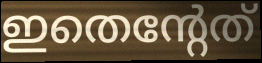
ഇതെന്റേത്